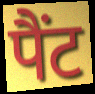
पैंट